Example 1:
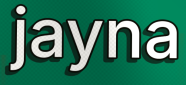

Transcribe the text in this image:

jayna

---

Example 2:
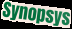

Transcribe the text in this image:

Synopsys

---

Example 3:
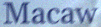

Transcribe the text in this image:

Macaw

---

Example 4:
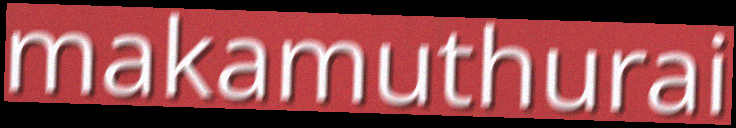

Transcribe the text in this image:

makamuthurai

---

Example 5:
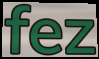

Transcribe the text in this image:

fez